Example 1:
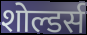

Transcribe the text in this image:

शोल्डर्स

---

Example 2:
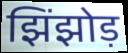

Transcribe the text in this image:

झिंझोड़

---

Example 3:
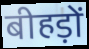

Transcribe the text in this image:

बीहड़ों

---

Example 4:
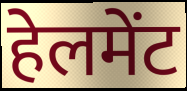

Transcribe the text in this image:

हेलमेंट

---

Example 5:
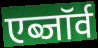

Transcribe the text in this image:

एब्जॉर्व